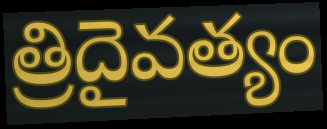
త్రిదైవత్యం